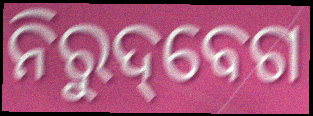
ନିରୁଦ୍‌ବେଗ